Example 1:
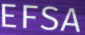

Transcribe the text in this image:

EFSA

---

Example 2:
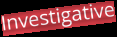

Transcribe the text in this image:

Investigative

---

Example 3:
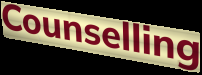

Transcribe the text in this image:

Counselling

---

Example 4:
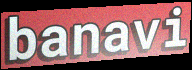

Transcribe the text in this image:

banavi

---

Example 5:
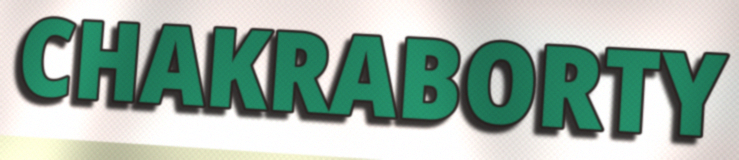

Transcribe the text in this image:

CHAKRABORTY